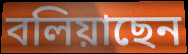
বলিয়াছেন